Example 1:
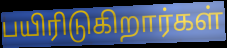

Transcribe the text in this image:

பயிரிடுகிறார்கள்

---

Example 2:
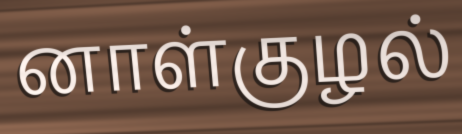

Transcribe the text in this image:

னாள்குழல்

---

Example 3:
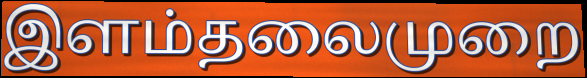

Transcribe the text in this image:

இளம்தலைமுறை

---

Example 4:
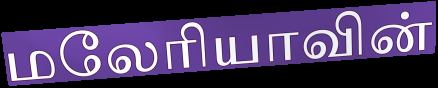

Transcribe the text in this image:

மலேரியாவின்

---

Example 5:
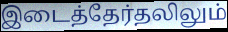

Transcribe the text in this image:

இடைத்தேர்தலிலும்